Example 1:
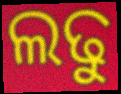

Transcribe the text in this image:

ଲଢୁ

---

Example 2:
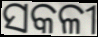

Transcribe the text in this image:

ସକଳୀ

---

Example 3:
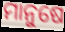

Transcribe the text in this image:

ମାନୁଷେ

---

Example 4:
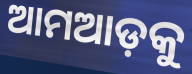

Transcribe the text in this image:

ଆମଆଡ଼କୁ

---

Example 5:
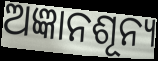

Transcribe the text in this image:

ଅଜ୍ଞାନଶୂନ୍ୟ